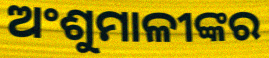
ଅଂଶୁମାଳୀଙ୍କର